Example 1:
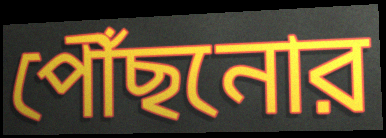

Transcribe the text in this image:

পৌঁছনোর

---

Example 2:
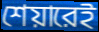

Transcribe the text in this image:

শেয়ারেই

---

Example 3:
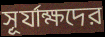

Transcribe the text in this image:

সূর্যাক্ষদের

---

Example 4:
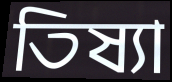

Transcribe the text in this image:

তিষ্যা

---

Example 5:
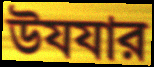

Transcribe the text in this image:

উযযার